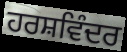
ਹਰਸ਼ਵਿੰਦਰ